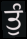
ਤੁੰ